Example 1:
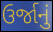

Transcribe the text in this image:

ઉર્જાનું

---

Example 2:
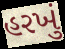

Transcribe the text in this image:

હરખું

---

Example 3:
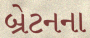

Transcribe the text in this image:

બ્રેટનના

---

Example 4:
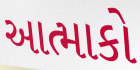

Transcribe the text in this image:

આત્માકો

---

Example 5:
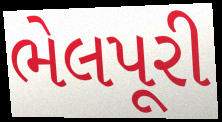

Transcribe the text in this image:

ભેલપૂરી